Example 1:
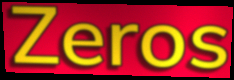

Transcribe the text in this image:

Zeros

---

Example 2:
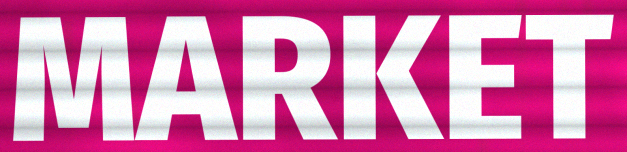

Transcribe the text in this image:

MARKET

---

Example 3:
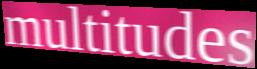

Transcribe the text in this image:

multitudes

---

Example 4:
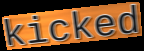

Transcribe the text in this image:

kicked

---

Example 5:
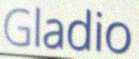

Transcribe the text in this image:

Gladio